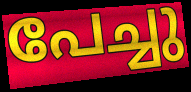
പേച്ചു